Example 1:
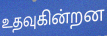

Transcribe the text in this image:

உதவுகின்றன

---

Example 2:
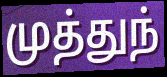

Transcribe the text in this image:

முத்துந்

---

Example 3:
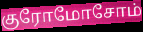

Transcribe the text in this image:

குரோமோசோம்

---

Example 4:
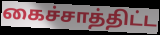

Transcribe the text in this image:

கைச்சாத்திட்ட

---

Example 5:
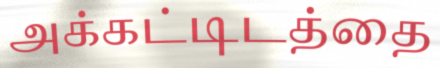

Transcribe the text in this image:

அக்கட்டிடத்தை